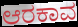
ಆರಕಾವ